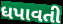
ધપાવતી